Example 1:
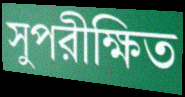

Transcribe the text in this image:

সুপরীক্ষিত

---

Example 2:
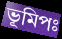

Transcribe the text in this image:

ভূমিপঃ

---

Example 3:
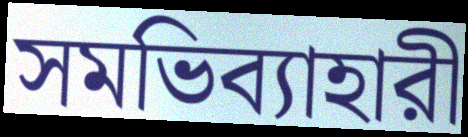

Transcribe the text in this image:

সমভিব্যাহারী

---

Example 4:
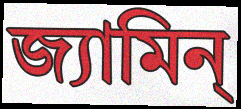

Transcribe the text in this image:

জ্যামিন্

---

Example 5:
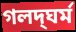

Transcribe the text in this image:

গলদ্‌ঘর্ম